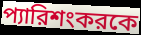
প্যারিশংকরকে